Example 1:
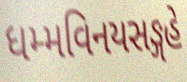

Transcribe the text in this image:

ધમ્મવિનયસઙ્ગહે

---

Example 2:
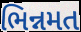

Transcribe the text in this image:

ભિન્નમત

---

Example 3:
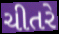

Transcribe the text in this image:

ચીતરે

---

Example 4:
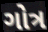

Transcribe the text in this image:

ગોત્ર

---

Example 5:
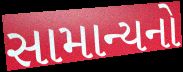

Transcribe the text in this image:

સામાન્યનો